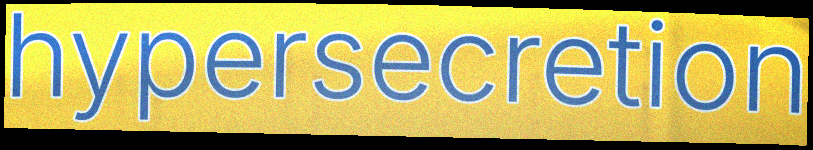
hypersecretion